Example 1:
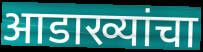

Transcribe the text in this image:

आडाख्यांचा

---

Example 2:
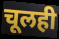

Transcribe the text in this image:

चूलही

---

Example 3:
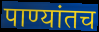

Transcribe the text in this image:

पाण्यांतच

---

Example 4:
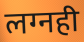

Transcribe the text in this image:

लग्नही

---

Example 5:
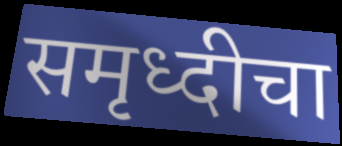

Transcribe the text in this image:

समृध्दीचा